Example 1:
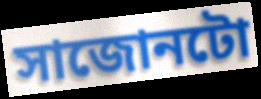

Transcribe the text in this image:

সাজোনটো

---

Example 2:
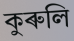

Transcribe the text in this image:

কুৰুলি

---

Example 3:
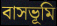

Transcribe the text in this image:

বাসভূমি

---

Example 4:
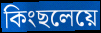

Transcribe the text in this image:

কিংছলেয়ে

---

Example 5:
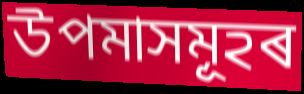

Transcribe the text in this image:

উপমাসমূহৰ